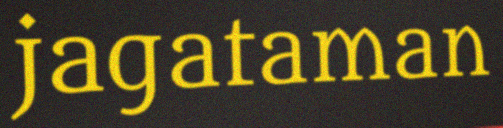
jagataman